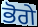
ਭੋਗੇ